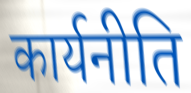
कार्यनीति